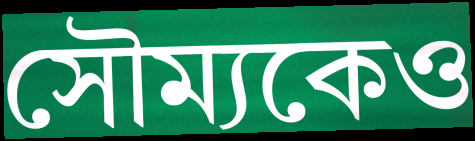
সৌম্যকেও